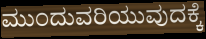
ಮುಂದುವರಿಯುವುದಕ್ಕೆ